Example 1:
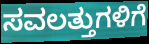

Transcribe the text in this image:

ಸವಲತ್ತುಗಳಿಗೆ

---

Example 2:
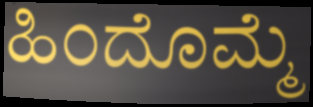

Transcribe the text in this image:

ಹಿಂದೊಮ್ಮೆ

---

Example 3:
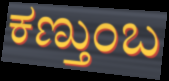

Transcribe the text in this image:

ಕಣ್ತುಂಬ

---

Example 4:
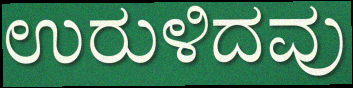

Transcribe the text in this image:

ಉರುಳಿದವು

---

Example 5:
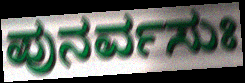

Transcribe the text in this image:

ಪುನರ್ವಸುಃ